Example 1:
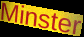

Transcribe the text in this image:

Minster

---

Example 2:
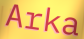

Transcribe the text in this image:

Arka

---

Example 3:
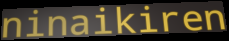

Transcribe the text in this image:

ninaikiren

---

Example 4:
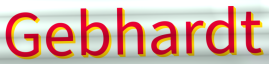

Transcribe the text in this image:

Gebhardt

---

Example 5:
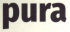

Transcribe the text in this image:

pura